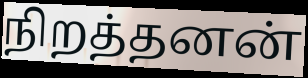
நிறத்தனன்